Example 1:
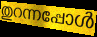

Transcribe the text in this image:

തുറന്നപ്പോൾ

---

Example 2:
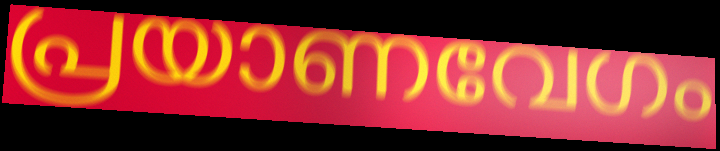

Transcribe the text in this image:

പ്രയാണവേഗം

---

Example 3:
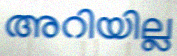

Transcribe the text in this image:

അറിയില്ല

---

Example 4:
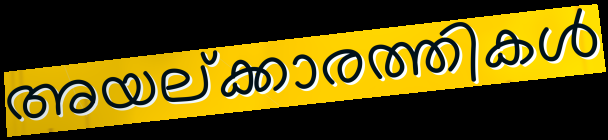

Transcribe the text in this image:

അയല്ക്കാരത്തികൾ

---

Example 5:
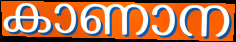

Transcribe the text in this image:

കാണാന